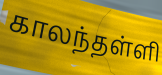
காலந்தள்ளி